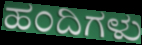
ಹಂದಿಗಳು